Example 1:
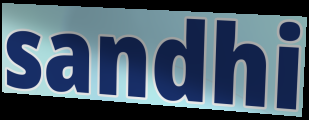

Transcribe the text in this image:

sandhi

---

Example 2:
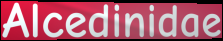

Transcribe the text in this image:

Alcedinidae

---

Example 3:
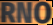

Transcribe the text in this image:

RNO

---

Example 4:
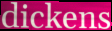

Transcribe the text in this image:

dickens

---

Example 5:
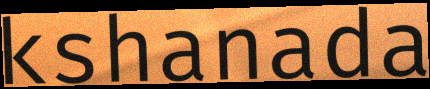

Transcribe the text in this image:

kshanada